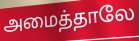
அமைத்தாலே